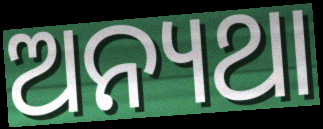
ଅନ୍ୟଥା